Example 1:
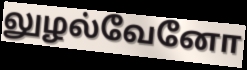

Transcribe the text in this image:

லுழல்வேனோ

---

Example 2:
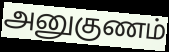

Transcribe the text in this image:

அனுகுணம்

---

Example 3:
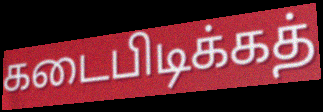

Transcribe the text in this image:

கடைபிடிக்கத்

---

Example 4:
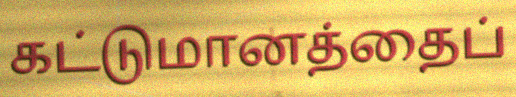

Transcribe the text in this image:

கட்டுமானத்தைப்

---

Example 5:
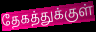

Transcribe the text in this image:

தேகத்துக்குள்